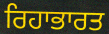
ਰਿਹਾਭਾਰਤ